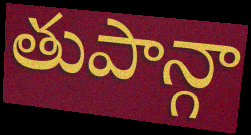
తుపాన్గా